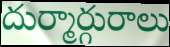
దుర్మార్గురాలు